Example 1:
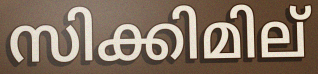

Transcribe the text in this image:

സിക്കിമില്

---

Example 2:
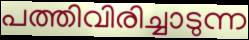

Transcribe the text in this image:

പത്തിവിരിച്ചാടുന്ന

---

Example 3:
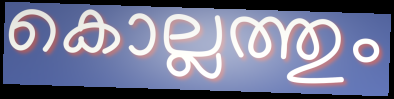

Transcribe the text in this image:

കൊല്ലത്തും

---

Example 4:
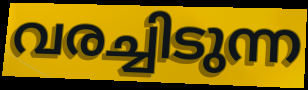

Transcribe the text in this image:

വരച്ചിടുന്ന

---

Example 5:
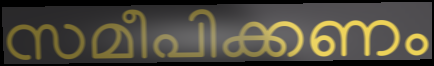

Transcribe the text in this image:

സമീപിക്കണം